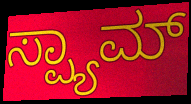
ಸ್ಪ್ಯಾಮ್